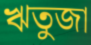
ঋতুজা